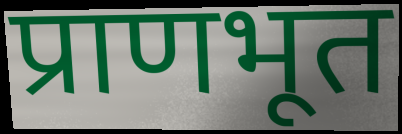
प्राणभूत